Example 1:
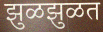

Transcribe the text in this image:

झुळझुळत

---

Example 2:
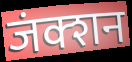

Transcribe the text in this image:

जंक्शन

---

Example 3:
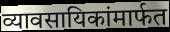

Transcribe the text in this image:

व्यावसायिकांमार्फत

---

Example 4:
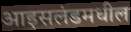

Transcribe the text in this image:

आइसलंडमधील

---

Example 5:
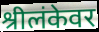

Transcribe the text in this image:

श्रीलंकेवर